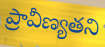
ప్రావీణ్యతని